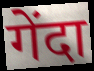
गेंदा